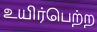
உயிர்பெற்ற